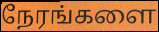
நேரங்களை